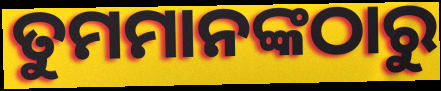
ତୁମମାନଙ୍କଠାରୁ